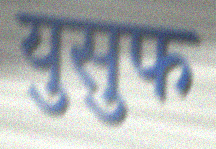
युसुफ